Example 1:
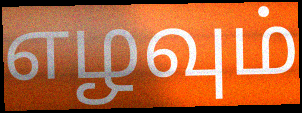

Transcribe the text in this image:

எழவும்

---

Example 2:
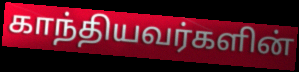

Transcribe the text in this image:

காந்தியவர்களின்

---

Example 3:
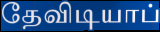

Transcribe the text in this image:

தேவிடியாப்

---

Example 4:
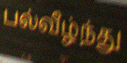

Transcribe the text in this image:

பல்வீழ்ந்து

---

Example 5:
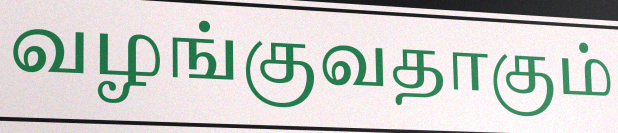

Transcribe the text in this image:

வழங்குவதாகும்